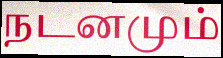
நடனமும்